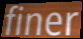
finer